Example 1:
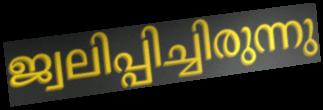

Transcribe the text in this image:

ജ്വലിപ്പിച്ചിരുന്നു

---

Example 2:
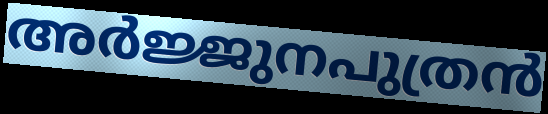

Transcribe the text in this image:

അർജ്ജുനപുത്രൻ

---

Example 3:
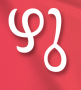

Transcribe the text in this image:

ഴു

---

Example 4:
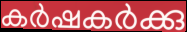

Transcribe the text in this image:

കർഷകർക്കു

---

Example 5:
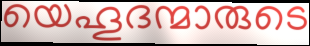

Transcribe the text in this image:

യെഹൂദന്മാരുടെ